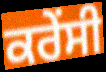
ਕਰੇੰਸੀ